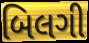
બિલગી